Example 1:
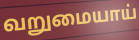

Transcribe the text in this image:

வறுமையாய்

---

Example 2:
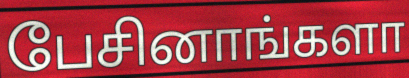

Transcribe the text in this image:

பேசினாங்களா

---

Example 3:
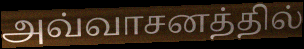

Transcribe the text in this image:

அவ்வாசனத்தில்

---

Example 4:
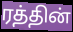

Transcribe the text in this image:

ரத்தின்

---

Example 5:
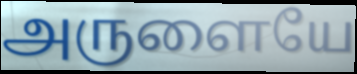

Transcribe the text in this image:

அருளையே